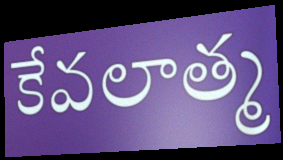
కేవలాత్మ